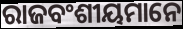
ରାଜବଂଶୀୟମାନେ